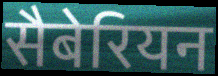
सैबेरियन